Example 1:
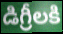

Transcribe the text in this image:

డిగ్రీలకి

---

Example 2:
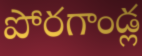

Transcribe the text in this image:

పోరగాండ్ల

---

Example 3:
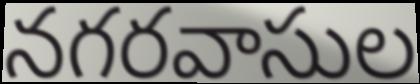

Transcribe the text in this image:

నగరవాసుల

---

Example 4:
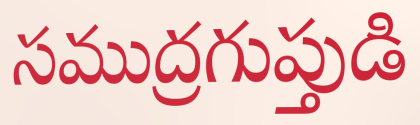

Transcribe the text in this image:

సముద్రగుప్తుడి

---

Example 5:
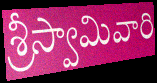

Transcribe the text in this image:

శ్రీస్వామివారి